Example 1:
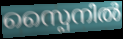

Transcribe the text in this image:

സ്പൈനിൽ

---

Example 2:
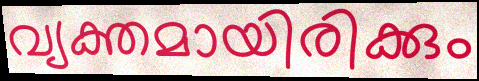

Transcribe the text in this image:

വ്യക്തമായിരിക്കും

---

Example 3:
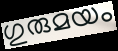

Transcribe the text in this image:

ഗുരുമയം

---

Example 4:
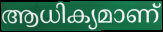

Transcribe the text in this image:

ആധിക്യമാണ്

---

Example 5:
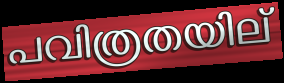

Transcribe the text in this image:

പവിത്രതയില്